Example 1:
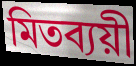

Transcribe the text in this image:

মিতব্যয়ী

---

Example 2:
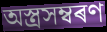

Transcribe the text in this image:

অস্ত্ৰসম্বৰণ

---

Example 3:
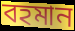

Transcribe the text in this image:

বহমান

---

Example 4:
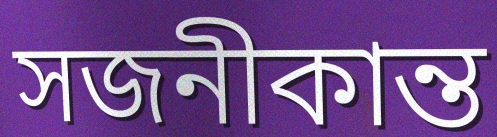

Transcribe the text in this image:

সজনীকান্ত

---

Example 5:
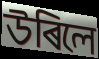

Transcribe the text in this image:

উৰিলে